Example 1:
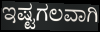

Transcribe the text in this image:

ಇಷ್ಟಗಲವಾಗಿ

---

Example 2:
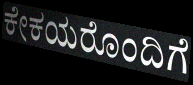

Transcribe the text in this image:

ಕೇಕಯರೊಂದಿಗೆ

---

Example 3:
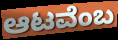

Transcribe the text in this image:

ಆಟವೆಂಬ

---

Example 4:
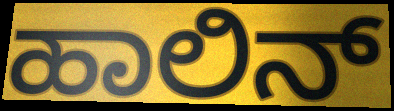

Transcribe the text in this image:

ಹಾಲಿನ್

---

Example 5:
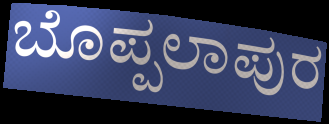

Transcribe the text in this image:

ಬೊಪ್ಪಲಾಪುರ